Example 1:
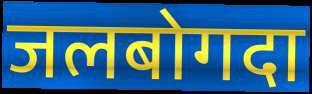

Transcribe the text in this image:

जलबोगदा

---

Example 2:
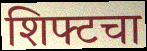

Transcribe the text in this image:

शिफ्टचा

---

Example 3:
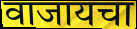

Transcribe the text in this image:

वाजायचा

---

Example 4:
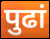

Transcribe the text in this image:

पुढां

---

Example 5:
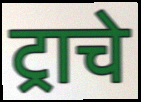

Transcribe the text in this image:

ट्राचे